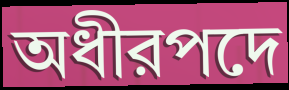
অধীরপদে